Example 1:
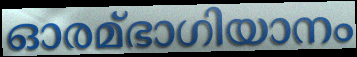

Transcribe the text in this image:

ഓരമ്ഭാഗിയാനം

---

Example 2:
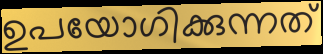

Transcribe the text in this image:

ഉപയോഗിക്കുന്നത്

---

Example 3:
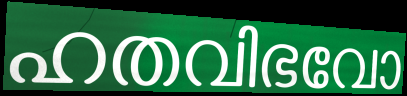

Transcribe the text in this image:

ഹതവിഭവോ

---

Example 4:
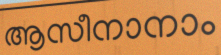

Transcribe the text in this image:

ആസീനാനാം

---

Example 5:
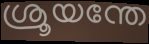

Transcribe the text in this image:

ശ്രൂയന്തേ